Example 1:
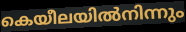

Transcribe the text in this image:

കെയീലയിൽനിന്നും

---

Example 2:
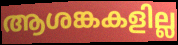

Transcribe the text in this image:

ആശങ്കകളില്ല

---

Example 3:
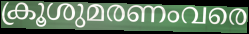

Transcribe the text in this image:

ക്രൂശുമരണംവരെ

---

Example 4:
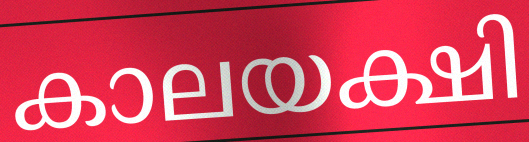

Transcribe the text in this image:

കാലയക്ഷി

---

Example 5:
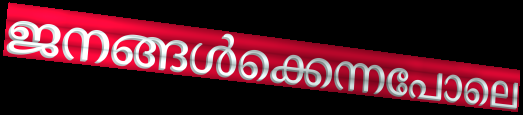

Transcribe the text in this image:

ജനങ്ങൾക്കെന്നപോലെ